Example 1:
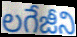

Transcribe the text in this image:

లగేజీని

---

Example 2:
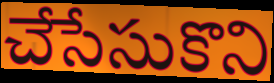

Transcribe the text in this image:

చేసేసుకొని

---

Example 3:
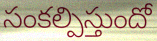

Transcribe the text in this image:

సంకల్పిస్తుందో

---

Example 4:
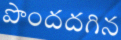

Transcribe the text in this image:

పొందదగిన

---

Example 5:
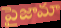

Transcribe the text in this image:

పైజామా